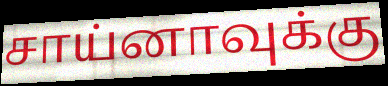
சாய்னாவுக்கு